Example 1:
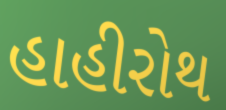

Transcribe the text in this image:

હાહીરોથ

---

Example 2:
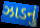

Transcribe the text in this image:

ઝાડનું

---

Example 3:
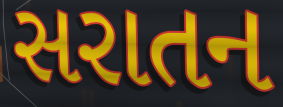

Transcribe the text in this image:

સરાતન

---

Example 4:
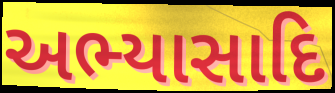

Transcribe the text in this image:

અભ્યાસાદિ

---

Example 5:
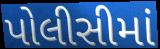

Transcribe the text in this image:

પોલીસીમાં